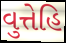
વુત્તેહિ